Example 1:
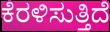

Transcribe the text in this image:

ಕೆರಳಿಸುತ್ತಿದೆ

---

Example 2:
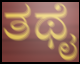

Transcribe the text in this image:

ತಥೈ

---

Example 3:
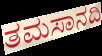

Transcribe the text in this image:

ತಮಸಾನದಿ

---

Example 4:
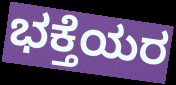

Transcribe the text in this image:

ಭಕ್ತೆಯರ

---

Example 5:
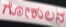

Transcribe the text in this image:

ಗೋಕುಲನ